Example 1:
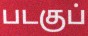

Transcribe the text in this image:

படகுப்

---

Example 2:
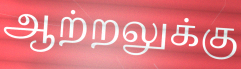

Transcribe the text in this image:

ஆற்றலுக்கு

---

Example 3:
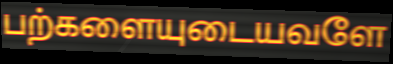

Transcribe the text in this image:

பற்களையுடையவளே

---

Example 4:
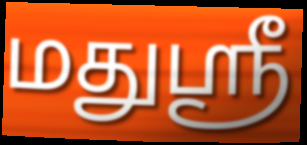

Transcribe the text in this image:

மதுஸ்ரீ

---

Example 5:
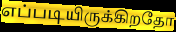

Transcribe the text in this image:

எப்படியிருக்கிறதோ